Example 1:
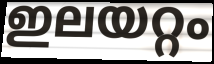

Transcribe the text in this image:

ഇലയറ്റം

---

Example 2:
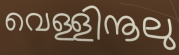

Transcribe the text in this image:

വെള്ളിനൂലു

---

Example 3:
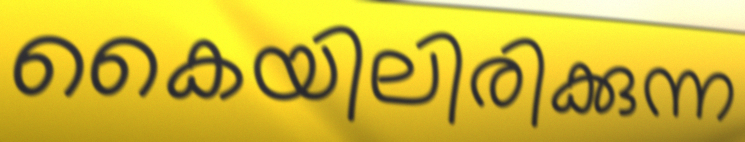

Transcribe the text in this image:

കൈയിലിരിക്കുന്ന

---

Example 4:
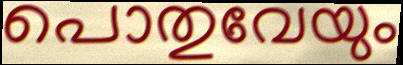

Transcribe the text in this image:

പൊതുവേയും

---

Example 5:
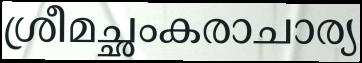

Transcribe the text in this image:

ശ്രീമച്ഛംകരാചാര്യ